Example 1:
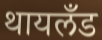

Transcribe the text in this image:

थायलँड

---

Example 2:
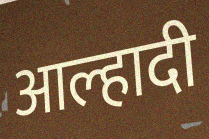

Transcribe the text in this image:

आल्हादी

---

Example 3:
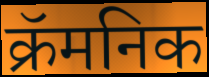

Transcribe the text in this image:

क्रॅमनिक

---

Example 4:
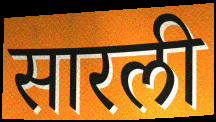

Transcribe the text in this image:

सारली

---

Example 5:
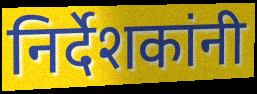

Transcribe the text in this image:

निर्देशकांनी